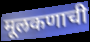
मूलकणाची